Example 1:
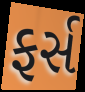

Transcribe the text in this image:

ફર્સ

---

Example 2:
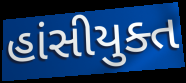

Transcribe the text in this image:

હાંસીયુક્ત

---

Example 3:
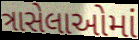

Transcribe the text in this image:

ત્રાસેલાઓમાં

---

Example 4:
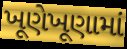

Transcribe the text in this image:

ખૂણેખૂણામાં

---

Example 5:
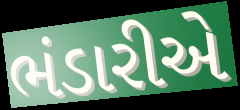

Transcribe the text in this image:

ભંડારીએ